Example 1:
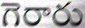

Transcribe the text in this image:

గెరారు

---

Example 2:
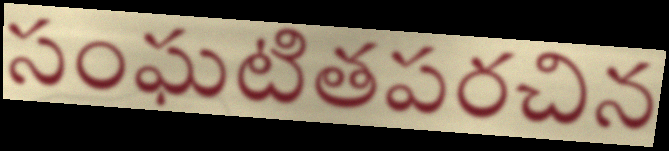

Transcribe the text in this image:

సంఘటితపరచిన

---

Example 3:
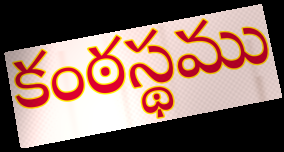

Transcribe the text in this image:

కంఠస్థము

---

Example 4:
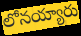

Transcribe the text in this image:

లోనయ్యారు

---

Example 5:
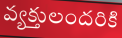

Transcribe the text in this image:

వ్యక్తులందరికి